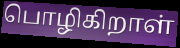
பொழிகிறாள்